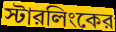
স্টারলিংকের